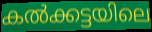
കൽക്കട്ടയിലെ